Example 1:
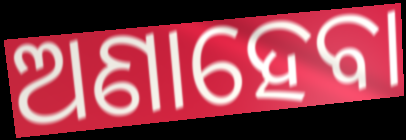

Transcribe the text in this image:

ଅଣାହେବା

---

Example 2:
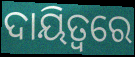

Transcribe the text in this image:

ଦାୟିତ୍ବରେ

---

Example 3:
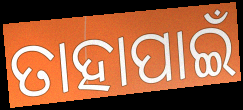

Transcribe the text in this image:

ତାହାପାଇଁ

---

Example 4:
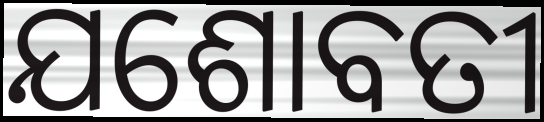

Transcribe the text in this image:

ଯଶୋବତୀ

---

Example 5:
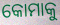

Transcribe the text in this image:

କୋମାକୁ